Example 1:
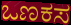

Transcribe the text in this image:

ಒಣಕಸ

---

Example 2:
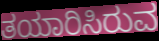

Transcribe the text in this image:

ತಯಾರಿಸಿರುವ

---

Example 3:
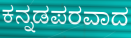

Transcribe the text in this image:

ಕನ್ನಡಪರವಾದ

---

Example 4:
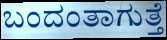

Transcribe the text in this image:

ಬಂದಂತಾಗುತ್ತೆ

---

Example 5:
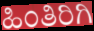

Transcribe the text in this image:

ಹಿಂತಿರಿಗಿ